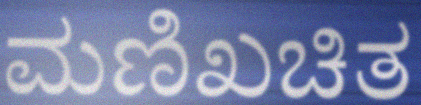
ಮಣಿಖಚಿತ